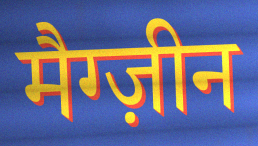
मैग्ज़ीन